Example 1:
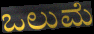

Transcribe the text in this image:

ಒಲುಮೆ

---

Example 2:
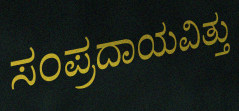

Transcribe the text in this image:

ಸಂಪ್ರದಾಯವಿತ್ತು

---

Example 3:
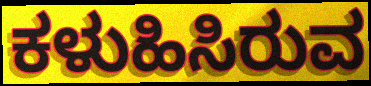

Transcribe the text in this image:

ಕಳುಹಿಸಿರುವ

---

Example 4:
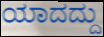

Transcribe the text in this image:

ಯಾದದ್ದು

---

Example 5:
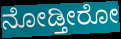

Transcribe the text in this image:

ನೋಡ್ತೀರೋ